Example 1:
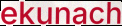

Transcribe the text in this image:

ekunach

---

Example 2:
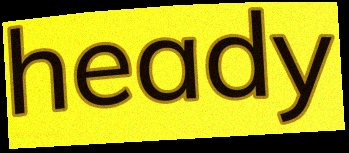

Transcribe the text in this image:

heady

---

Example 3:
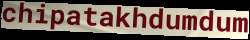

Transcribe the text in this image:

chipatakhdumdum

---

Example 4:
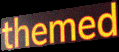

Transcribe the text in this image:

themed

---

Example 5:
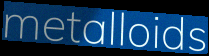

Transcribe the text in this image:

metalloids